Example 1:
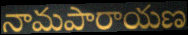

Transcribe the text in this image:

నామపారాయణ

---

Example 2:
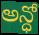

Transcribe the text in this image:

అన్ధో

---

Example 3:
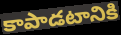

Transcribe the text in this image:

కాపాడటానికి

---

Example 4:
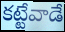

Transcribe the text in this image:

కట్టేవాడే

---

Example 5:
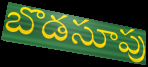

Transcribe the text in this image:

బొడసూపు